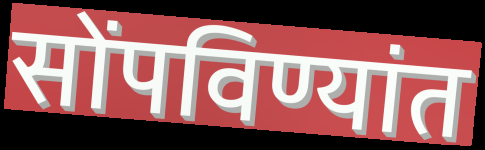
सोंपविण्यांत